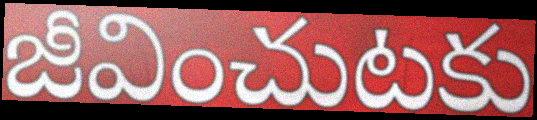
జీవించుటకు